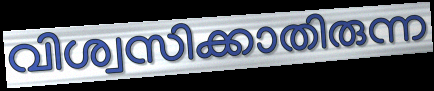
വിശ്വസിക്കാതിരുന്ന